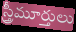
స్త్రీమూర్తులు